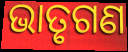
ଭାତୃଗଣ